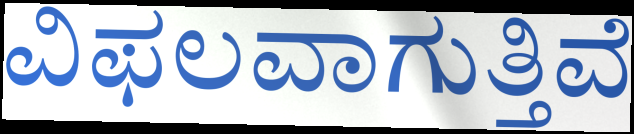
ವಿಫಲವಾಗುತ್ತಿವೆ